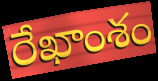
రేఖాంశం